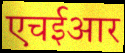
एचईआर